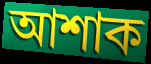
আশাক